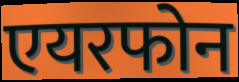
एयरफोन